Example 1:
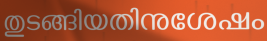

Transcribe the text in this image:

തുടങ്ങിയതിനുശേഷം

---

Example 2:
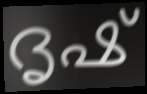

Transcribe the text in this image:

ദൃഷ്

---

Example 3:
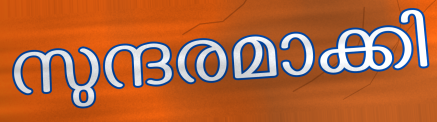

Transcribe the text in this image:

സുന്ദരമാക്കി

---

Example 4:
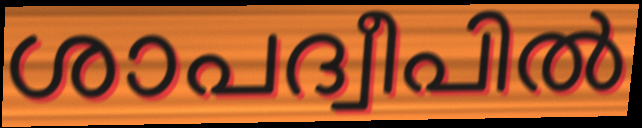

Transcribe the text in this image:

ശാപദ്വീപിൽ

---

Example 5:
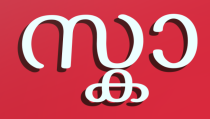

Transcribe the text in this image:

സ്കാ